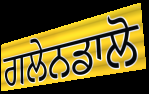
ਗਲੇਨਡਾਲੋ